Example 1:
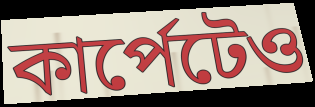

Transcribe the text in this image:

কার্পেটেও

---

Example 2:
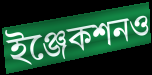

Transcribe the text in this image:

ইঞ্জেকশনও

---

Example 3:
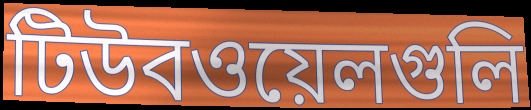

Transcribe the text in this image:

টিউবওয়েলগুলি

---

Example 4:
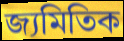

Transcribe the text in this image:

জ্যমিতিক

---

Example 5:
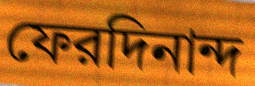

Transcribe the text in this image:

ফেরদিনান্দ